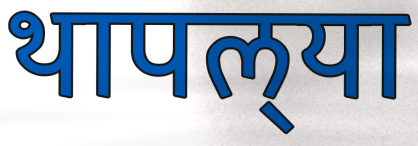
थापल्या